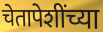
चेतापेशींच्या